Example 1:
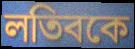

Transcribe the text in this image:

লতিবকে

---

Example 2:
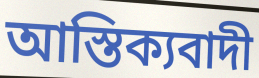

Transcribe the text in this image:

আস্তিক্যবাদী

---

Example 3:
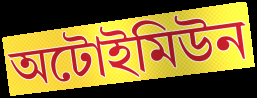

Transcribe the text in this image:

অটোইমিউন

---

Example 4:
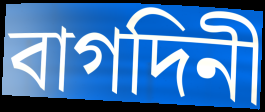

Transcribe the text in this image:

বাগদিনী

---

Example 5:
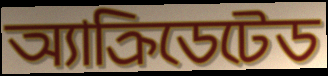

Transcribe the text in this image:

অ্যাক্রিডেটেড